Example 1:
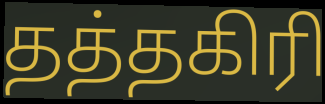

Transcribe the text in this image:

தத்தகிரி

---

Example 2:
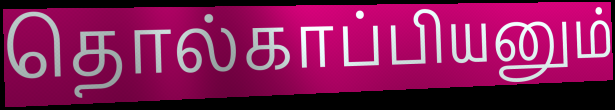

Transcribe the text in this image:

தொல்காப்பியனும்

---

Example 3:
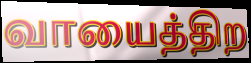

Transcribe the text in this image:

வாயைத்திற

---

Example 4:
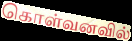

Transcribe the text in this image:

கொள்வனவில்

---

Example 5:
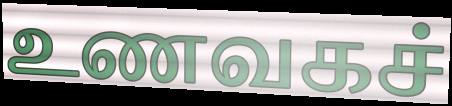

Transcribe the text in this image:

உணவகச்